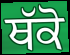
ਥੱਕੋ